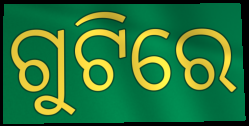
ଗୁଟିରେ